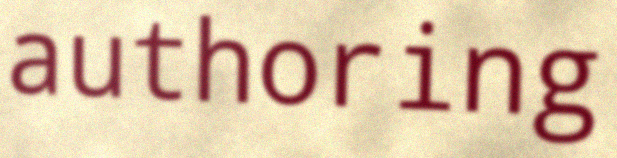
authoring